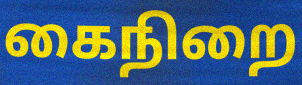
கைநிறை